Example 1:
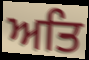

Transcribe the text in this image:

ਅਤਿ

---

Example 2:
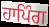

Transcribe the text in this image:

ਹਾਪਿੰਗ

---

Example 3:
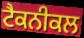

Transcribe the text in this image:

ਟੈਕਨੀਕਲ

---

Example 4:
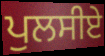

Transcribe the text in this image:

ਪੁਲਸੀਏ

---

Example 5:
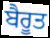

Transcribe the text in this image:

ਬੈਰੂਤ